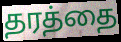
தரத்தை